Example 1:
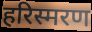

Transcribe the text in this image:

हरिस्मरण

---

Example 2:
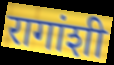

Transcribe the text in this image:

रागांशी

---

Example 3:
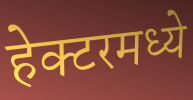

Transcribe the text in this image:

हेक्टरमध्ये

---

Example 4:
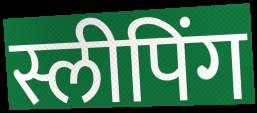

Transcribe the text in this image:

स्लीपिंग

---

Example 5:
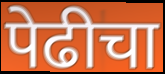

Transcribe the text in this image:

पेढीचा